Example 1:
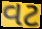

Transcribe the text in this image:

વટ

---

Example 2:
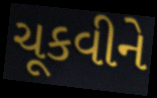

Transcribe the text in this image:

ચૂકવીને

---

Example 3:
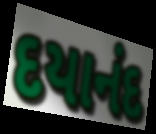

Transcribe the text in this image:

દયાનંદ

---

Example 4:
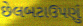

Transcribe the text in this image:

છેલબટાઉપણું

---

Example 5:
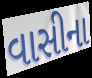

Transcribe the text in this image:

વાસીના